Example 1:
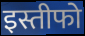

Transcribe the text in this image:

इस्तीफो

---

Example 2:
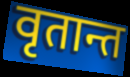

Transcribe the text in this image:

वृतान्त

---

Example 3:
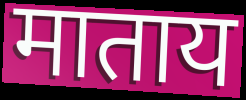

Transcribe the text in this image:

माताय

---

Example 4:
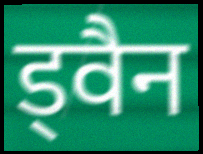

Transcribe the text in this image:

ड्वैन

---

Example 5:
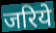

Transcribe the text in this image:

जरिये